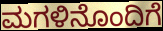
ಮಗಳಿನೊಂದಿಗೆ